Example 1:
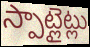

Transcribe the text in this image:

స్పాట్లైట్లు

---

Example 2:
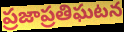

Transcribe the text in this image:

ప్రజాప్రతిఘటన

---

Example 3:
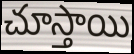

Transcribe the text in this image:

చూస్తాయి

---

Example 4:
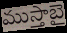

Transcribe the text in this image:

ముస్తాబై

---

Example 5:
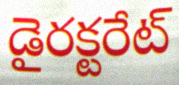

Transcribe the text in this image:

డైరక్టరేట్